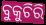
ବୁକୁଚିରି